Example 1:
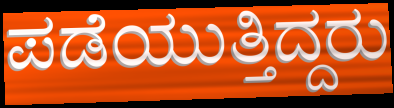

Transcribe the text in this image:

ಪಡೆಯುತ್ತಿದ್ದರು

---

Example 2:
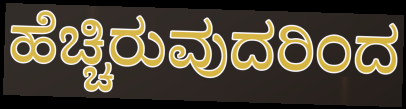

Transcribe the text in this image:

ಹೆಚ್ಚಿರುವುದರಿಂದ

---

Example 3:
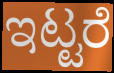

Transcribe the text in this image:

ಇಟ್ಟರೆ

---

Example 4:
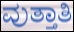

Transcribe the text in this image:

ವುತ್ತಾತಿ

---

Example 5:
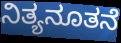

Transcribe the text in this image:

ನಿತ್ಯನೂತನೆ